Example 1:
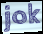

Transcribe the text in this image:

jok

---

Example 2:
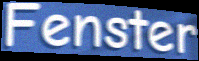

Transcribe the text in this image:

Fenster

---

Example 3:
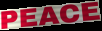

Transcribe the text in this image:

PEACE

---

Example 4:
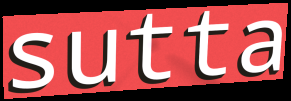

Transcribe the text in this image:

sutta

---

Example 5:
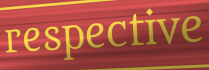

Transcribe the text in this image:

respective